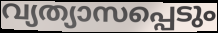
വ്യത്യാസപ്പെടും